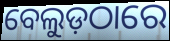
ବେଲୁଡ଼ଠାରେ